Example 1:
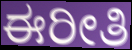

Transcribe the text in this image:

ಈರೀತಿ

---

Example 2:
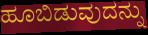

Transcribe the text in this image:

ಹೂಬಿಡುವುದನ್ನು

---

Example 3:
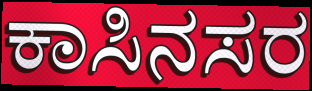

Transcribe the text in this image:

ಕಾಸಿನಸರ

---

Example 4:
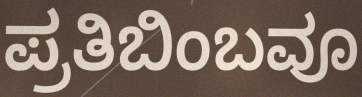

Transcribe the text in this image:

ಪ್ರತಿಬಿಂಬವೂ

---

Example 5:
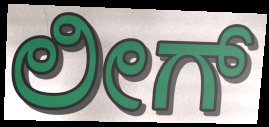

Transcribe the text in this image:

ಲೀಗ್